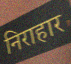
निराहार